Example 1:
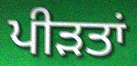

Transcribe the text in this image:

ਪੀੜਤਾਂ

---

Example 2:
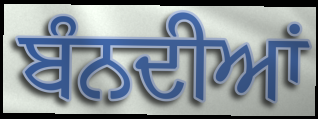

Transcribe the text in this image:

ਬੰਨਦੀਆਂ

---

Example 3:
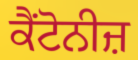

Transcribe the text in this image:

ਕੈਂਟੋਨੀਜ਼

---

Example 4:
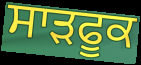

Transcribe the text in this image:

ਸਾੜਫੂਕ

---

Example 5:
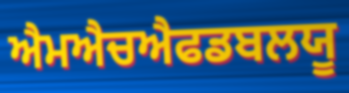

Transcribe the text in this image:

ਐਮਐਚਐਫਡਬਲਯੂ